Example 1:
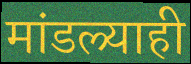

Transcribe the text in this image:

मांडल्याही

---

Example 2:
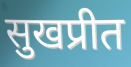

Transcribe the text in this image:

सुखप्रीत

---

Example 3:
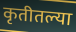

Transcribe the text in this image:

कृतीतल्या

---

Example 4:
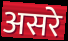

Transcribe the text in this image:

असरे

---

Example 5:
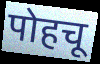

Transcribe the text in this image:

पोहचू